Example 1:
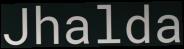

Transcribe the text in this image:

Jhalda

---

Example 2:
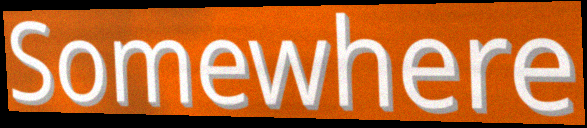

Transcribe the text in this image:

Somewhere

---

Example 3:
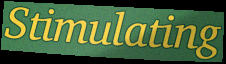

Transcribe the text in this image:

Stimulating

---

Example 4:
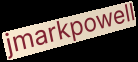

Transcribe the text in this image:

jmarkpowell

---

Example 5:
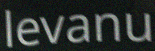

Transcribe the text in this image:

levanu